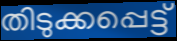
തിടുക്കപ്പെട്ട്